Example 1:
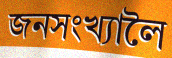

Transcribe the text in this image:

জনসংখ্যালৈ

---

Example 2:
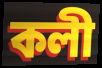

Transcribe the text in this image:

কলী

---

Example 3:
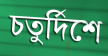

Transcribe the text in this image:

চতুৰ্দিশে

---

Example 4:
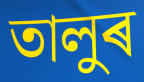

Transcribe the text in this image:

তালুৰ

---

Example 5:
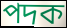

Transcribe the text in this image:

পদক